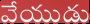
వేయుడు